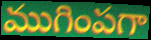
ముగింపగా